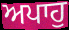
ਅਪਾਹੁ